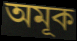
অমূক